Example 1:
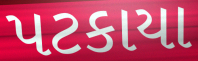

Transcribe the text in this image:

પટકાયા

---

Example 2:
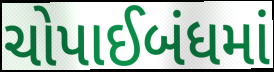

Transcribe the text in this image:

ચોપાઈબંધમાં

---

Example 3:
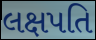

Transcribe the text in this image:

લક્ષપતિ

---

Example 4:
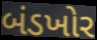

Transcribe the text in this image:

બંડખોર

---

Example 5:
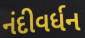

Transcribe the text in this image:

નંદીવર્ધન